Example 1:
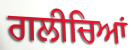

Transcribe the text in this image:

ਗਲੀਚਿਆਂ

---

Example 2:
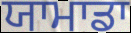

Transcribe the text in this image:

ਯਾਮਾਡਾ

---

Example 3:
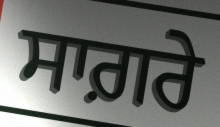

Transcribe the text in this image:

ਸਾਗ਼ਰੇ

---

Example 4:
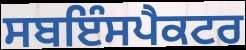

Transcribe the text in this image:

ਸਬਇੰਸਪੈਕਟਰ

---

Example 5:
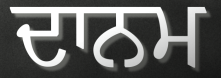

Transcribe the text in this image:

ਦਾਨਮ